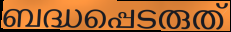
ബദ്ധപ്പെടരുത്